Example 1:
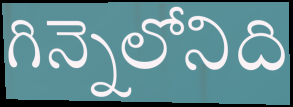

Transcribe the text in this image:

గిన్నెలోనిది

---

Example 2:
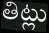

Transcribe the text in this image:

తిట్లు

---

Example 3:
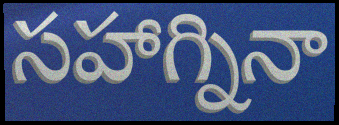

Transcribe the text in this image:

సహాగ్నినా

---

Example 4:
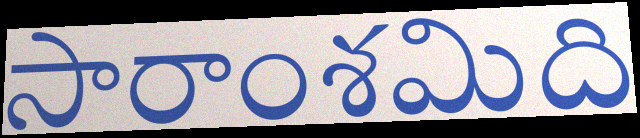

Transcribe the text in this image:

సారాంశమిది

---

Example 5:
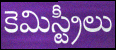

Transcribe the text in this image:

కెమిస్ట్రీలు